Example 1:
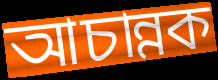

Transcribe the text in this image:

আচান্নক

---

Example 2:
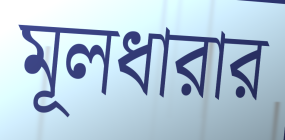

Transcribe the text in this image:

মূলধারার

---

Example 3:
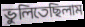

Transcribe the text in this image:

ভুলিতেছিলাম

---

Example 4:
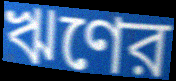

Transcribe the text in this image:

ঋণের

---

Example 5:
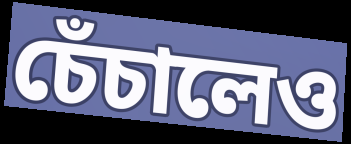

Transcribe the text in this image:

চেঁচালেও